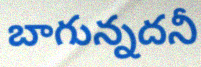
బాగున్నదనీ